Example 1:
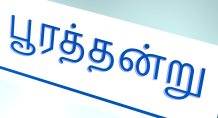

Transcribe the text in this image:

பூரத்தன்று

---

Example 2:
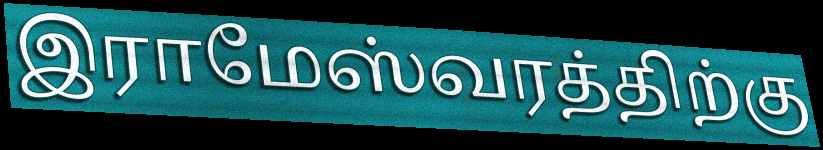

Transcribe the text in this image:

இராமேஸ்வரத்திற்கு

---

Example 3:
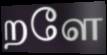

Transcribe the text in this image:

றளே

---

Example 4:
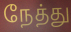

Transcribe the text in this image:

நேத்து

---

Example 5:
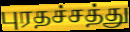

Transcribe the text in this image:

புரதச்சத்து